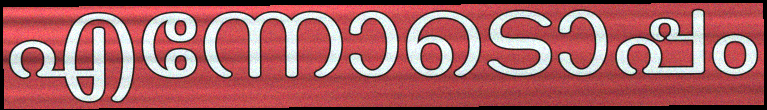
എന്നോടൊപ്പം